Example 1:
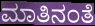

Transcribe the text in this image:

ಮಾತಿನಂತೆ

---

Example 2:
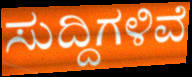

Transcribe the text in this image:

ಸುದ್ದಿಗಳಿವೆ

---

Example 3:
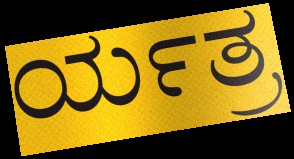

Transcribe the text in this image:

ರ್ಯತ್ರ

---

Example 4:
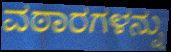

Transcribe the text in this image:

ವಠಾರಗಳನ್ನು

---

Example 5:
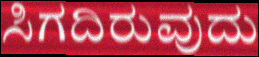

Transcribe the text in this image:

ಸಿಗದಿರುವುದು